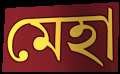
মেহা